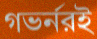
গভর্নরই